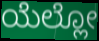
ಯೆಲ್ಲೋ